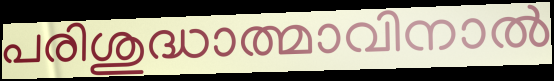
പരിശുദ്ധാത്മാവിനാൽ